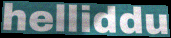
helliddu